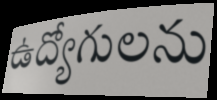
ఉద్యోగులను